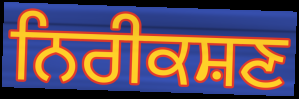
ਨਿਰੀਕਸ਼ਣ